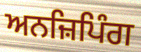
ਅਨਜ਼ਿਪਿੰਗ